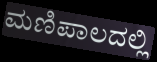
ಮಣಿಪಾಲದಲ್ಲಿ